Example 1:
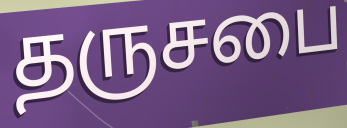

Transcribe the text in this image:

தருசபை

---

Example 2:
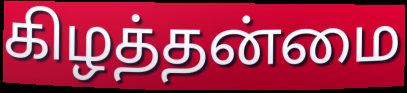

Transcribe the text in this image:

கிழத்தன்மை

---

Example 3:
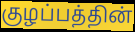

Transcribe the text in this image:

குழப்பத்தின்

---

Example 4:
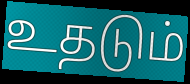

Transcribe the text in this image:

உதடும்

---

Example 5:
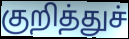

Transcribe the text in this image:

குறித்துச்